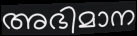
അഭിമാന